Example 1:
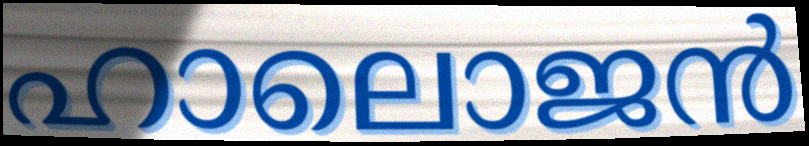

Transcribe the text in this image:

ഹാലൊജൻ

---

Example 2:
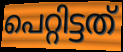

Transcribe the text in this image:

പെറ്റിട്ടത്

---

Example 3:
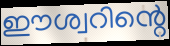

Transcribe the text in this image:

ഈശ്വറിന്റെ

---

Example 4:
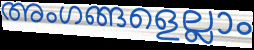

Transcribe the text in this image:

അംഗങ്ങളെല്ലാം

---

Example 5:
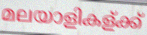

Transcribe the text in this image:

മലയാളികള്ക്ക്